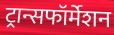
ट्रान्सफॉर्मेशन